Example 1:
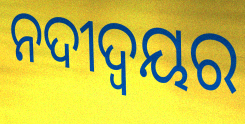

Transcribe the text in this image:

ନଦୀଦ୍ବୟର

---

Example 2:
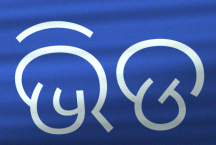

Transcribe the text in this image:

ଭିଡ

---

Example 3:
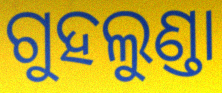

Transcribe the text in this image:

ଗୁହଲୁଣ୍ଡା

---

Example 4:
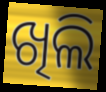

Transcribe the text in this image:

ଖିଲି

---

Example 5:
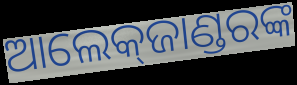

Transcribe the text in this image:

ଆଲେକ୍‌ଜାଣ୍ଡରଙ୍କ